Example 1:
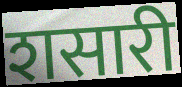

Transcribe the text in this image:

शसारी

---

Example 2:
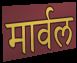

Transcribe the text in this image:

मार्वल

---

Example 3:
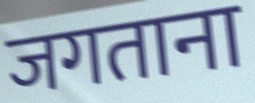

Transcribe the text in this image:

जगताना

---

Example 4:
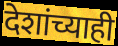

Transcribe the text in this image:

देशांच्याही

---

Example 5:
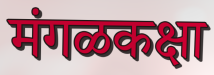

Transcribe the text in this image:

मंगळकक्षा